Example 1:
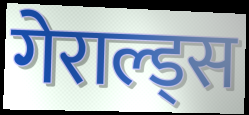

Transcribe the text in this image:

गेराल्ड्स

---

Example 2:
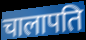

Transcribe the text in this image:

चालापति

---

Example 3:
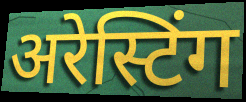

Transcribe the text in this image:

अरेस्टिंग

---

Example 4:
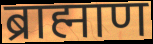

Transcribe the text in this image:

ब्राह्माण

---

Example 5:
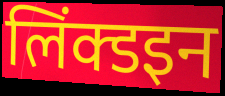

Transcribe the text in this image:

लिंक्‍डइन